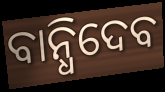
ବାନ୍ଧିଦେବ